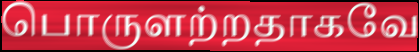
பொருளற்றதாகவே